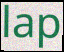
lap